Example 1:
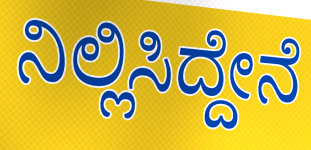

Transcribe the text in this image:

ನಿಲ್ಲಿಸಿದ್ದೇನೆ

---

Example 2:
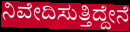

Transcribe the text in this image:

ನಿವೇದಿಸುತ್ತಿದ್ದೇನೆ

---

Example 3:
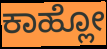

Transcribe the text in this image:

ಕಾಹ್ಲೋ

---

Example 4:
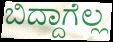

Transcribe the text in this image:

ಬಿದ್ದಾಗೆಲ್ಲ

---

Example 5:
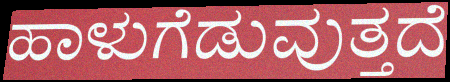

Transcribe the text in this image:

ಹಾಳುಗೆಡುವುತ್ತದೆ